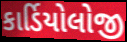
કાર્ડિયોલોજી